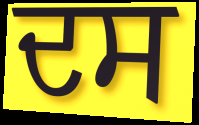
ਦਸ